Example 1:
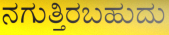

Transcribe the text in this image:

ನಗುತ್ತಿರಬಹುದು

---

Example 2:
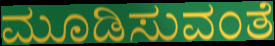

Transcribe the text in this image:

ಮೂಡಿಸುವಂತೆ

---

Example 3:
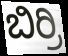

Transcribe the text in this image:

ಬಿರ್ರಿ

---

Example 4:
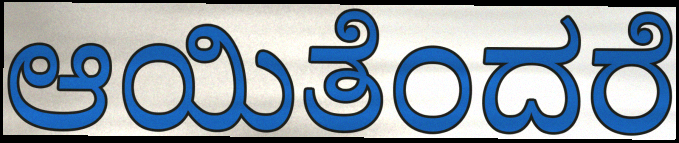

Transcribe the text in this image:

ಆಯಿತೆಂದರೆ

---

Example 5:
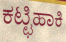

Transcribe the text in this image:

ಕಟ್ಟಿಹಾಕಿ